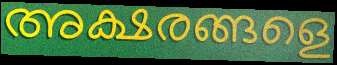
അക്ഷരങ്ങളെ